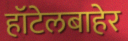
हॉटेलबाहेर